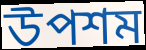
উপশম